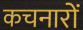
कचनारों